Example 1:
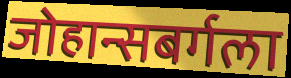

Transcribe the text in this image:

जोहान्सबर्गला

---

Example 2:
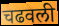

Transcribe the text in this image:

चढवली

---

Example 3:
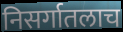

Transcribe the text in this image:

निसर्गातलाच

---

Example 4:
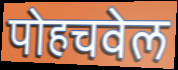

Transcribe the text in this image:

पोहचवेल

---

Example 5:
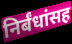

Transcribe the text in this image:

निर्बंधांसह